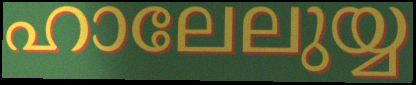
ഹാലേലുയ്യ